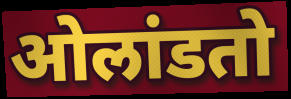
ओलांडतो